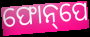
ଫୋନ୍‌ପେ